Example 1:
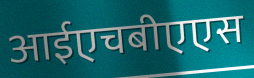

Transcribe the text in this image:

आईएचबीएएस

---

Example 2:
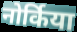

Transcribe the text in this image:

नोर्किया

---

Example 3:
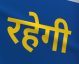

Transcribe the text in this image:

रहेगी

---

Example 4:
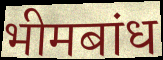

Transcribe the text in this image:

भीमबांध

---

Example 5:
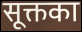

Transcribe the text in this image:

सूक्तका